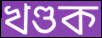
খণ্ডক